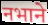
नभाने